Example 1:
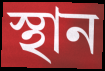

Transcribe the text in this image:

স্থান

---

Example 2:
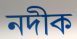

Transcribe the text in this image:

নদীক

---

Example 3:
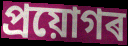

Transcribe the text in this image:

প্ৰয়োগৰ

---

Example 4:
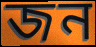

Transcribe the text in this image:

জন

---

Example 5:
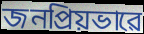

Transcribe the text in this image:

জনপ্ৰিয়ভাৱে